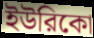
ইউরিকো